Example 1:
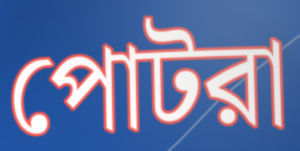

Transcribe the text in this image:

পোটরা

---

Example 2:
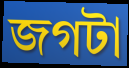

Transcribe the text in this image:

জগটা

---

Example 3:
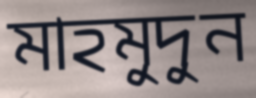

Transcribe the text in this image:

মাহমুদুন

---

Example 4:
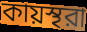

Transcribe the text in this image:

কায়স্থরা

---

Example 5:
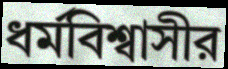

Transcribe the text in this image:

ধর্মবিশ্বাসীর